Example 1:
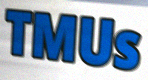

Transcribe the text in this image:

TMUs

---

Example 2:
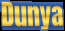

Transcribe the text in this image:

Dunya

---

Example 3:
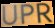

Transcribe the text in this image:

UPR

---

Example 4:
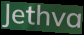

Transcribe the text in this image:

Jethva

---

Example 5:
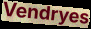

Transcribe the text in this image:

Vendryes